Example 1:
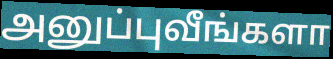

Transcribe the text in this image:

அனுப்புவீங்களா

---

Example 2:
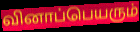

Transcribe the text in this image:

வினாப்பெயரும்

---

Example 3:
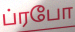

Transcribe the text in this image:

ப்ரபோ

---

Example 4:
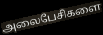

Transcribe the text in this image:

அலைபேசிகளை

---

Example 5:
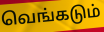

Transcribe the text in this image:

வெங்கடும்